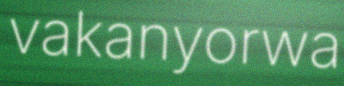
vakanyorwa